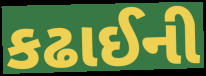
કઢાઈની